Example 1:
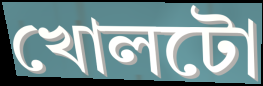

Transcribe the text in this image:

খোলটো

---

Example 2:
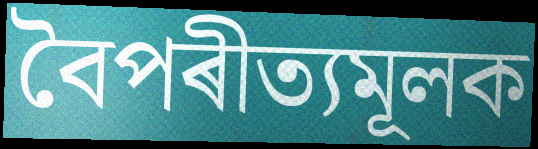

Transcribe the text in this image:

বৈপৰীত্যমূলক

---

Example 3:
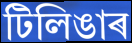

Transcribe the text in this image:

টিলিঙাৰ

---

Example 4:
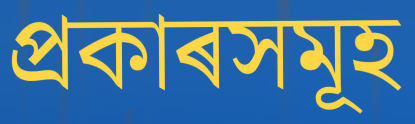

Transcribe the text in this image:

প্ৰকাৰসমূহ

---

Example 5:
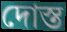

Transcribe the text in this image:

দোস্ত